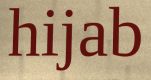
hijab